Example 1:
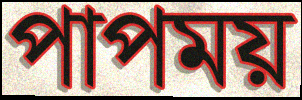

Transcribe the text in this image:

পাপময়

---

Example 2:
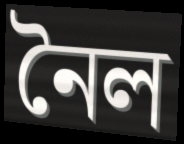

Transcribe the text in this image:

নৈল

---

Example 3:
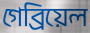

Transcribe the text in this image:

গেব্রিয়েল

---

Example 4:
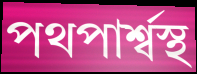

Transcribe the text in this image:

পথপার্শ্বস্থ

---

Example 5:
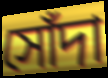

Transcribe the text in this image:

সোঁদা